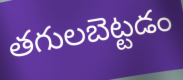
తగులబెట్టడం